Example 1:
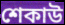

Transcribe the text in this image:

শেকাউ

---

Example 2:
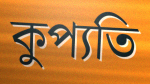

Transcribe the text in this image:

কুপ্যতি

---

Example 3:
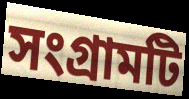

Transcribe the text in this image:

সংগ্রামটি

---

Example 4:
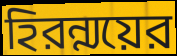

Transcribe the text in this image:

হিরন্ময়ের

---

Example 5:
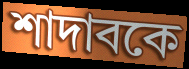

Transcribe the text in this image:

শাদাবকে